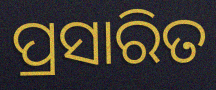
ପ୍ରସାରିତ